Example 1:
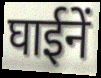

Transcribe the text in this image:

घाईनें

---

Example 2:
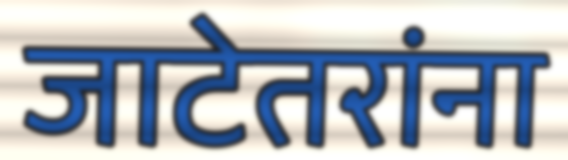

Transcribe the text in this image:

जाटेतरांना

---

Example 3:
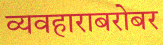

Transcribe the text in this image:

व्यवहाराबरोबर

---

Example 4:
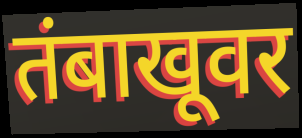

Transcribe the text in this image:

तंबाखूवर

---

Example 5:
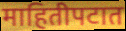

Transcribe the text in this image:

माहितीपटात